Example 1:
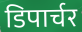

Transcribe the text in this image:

डिपार्चर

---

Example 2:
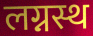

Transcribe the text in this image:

लग्नस्थ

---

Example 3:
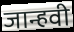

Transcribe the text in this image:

जान्हवी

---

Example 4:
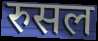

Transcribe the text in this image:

रुसल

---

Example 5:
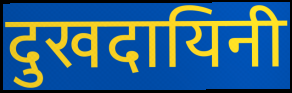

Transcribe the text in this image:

दुखदायिनी